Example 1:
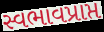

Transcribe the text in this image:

સ્વભાવપ્રાપ્ત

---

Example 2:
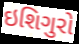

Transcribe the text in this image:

ઇશિગુરો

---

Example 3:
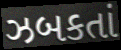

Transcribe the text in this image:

ઝબકતાં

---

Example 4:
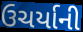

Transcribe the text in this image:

ઉચર્યાની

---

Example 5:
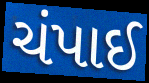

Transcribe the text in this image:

ચંપાઈ